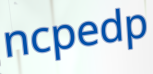
ncpedp